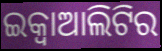
ଇକ୍ୱାଆଲିଟିର